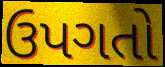
ઉપગતો